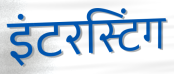
इंटरस्टिंग